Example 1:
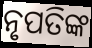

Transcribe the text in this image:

ନୃପତିଙ୍କ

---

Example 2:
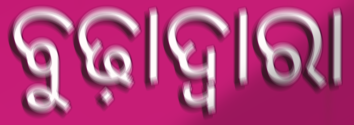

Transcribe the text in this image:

ବୁଢ଼ାଦ୍ୱାରା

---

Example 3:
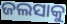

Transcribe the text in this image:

ଜଲସାକୁ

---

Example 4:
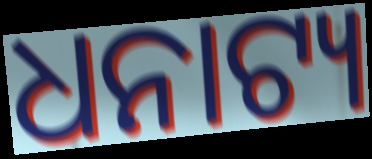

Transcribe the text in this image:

ଧନାଟ୍ୟ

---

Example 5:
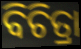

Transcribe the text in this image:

ବିଚିତ୍ରା